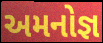
અમનોજ્ઞ